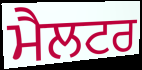
ਮੈਲਟਰ